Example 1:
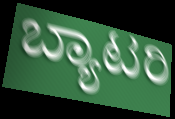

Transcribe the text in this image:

ಬ್ಯಾಟರಿ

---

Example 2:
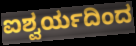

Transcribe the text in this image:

ಐಶ್ವರ್ಯದಿಂದ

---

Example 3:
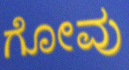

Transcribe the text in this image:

ಗೋವು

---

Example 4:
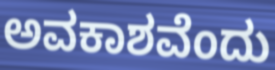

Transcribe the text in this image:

ಅವಕಾಶವೆಂದು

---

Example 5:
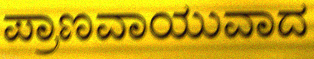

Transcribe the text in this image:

ಪ್ರಾಣವಾಯುವಾದ